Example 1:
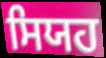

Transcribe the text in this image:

ਸਿਯਹ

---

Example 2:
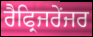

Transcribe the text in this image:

ਰੈਫ੍ਰਿਜਰੇਂਜਰ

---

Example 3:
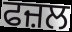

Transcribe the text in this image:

ਫਜ਼ਲ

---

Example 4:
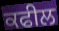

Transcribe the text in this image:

ਕਫੀਲ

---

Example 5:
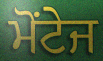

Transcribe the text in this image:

ਮੋਂਟੇਜ